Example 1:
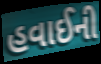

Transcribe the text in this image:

હવાઈની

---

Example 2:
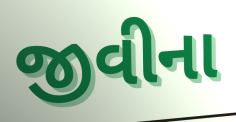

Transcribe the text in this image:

જીવીના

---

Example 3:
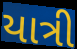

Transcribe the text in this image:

યાત્રી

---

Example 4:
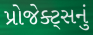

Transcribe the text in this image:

પ્રોજેક્ટ્સનું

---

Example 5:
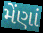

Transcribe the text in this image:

મેંણાં